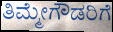
ತಿಮ್ಮೇಗೌಡರಿಗೆ